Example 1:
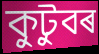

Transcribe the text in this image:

কুটুবৰ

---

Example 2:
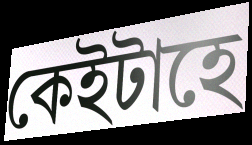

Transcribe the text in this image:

কেইটাহে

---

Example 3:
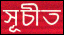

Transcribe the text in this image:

সূচীত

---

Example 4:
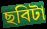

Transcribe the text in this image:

ছবিটা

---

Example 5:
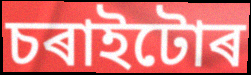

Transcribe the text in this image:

চৰাইটোৰ